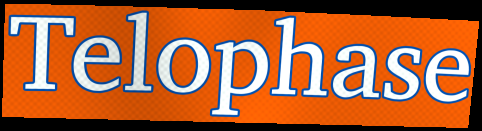
Telophase